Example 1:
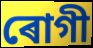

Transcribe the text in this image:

ৰোগী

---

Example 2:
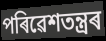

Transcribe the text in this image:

পৰিৱেশতন্ত্ৰৰ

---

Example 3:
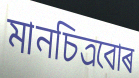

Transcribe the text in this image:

মানচিত্ৰবোৰ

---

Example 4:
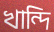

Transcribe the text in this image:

খান্দি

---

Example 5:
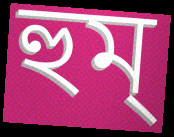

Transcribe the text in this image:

হুম্